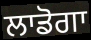
ਲਾਡੋਗਾ